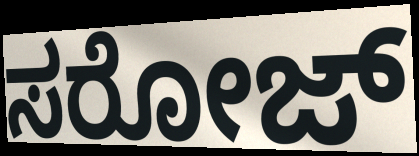
ಸರೋಜ್